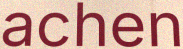
achen